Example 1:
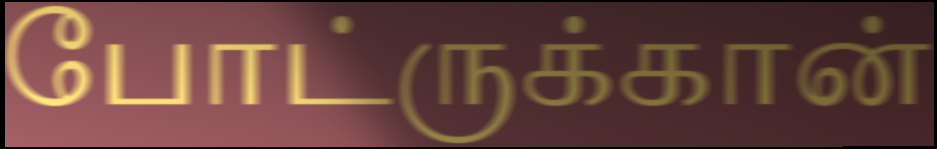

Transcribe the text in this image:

போட்ருக்கான்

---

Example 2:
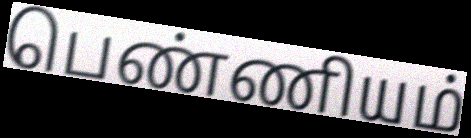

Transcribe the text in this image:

பெண்ணியம்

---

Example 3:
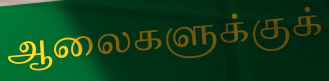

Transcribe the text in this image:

ஆலைகளுக்குக்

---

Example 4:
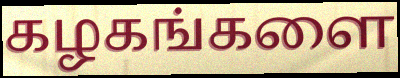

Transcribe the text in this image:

கழகங்களை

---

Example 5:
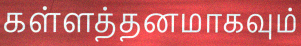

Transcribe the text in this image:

கள்ளத்தனமாகவும்